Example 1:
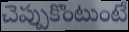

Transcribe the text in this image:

చెప్పుకొంటుంటే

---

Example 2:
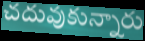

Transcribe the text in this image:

చదువుకున్నారు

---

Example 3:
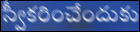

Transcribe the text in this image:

స్వీకరించేందుకు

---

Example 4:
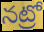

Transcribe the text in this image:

నట్రో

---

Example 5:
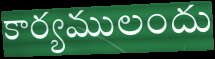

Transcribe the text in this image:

కార్యములందు